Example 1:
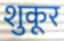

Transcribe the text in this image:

शुकूर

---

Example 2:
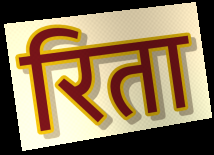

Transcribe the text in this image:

रिता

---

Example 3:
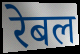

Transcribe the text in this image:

रेबल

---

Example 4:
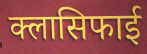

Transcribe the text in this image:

क्लासिफाई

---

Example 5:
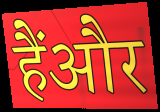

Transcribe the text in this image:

हैंऔर